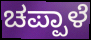
ಚಪ್ಪಾಳೆ